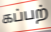
கப்பற்